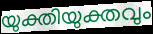
യുക്തിയുക്തവും